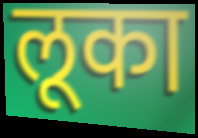
लूका